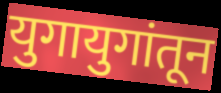
युगायुगांतून